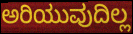
ಅರಿಯುವುದಿಲ್ಲ